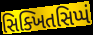
સિક્ખિતસિપ્પં